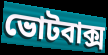
ভোটবাক্স